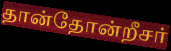
தான்தோன்றீசர்